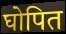
घोपित